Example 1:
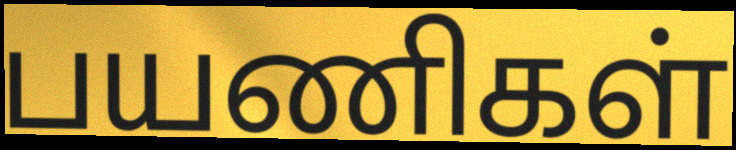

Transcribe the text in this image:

பயணிகள்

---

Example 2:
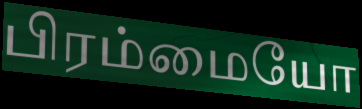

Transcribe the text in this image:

பிரம்மையோ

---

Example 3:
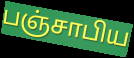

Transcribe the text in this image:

பஞ்சாபிய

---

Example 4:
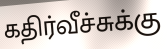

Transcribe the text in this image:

கதிர்வீச்சுக்கு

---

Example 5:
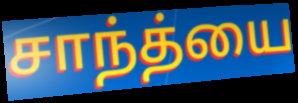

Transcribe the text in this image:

சாந்த்யை